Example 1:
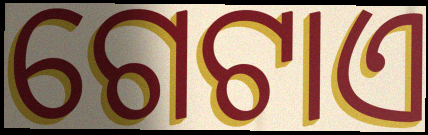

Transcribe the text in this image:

ଗେଟାଏ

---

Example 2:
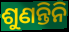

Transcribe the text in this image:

ଶୁଣନ୍ତିନି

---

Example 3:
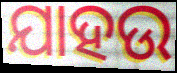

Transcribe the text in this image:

ଯାହଉ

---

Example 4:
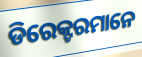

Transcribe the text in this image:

ଡିରେକ୍ଟରମାନେ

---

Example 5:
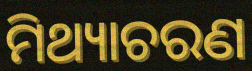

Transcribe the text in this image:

ମିଥ୍ୟାଚରଣ